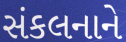
સંકલનાને